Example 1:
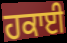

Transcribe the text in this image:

ਹਕਾਈ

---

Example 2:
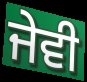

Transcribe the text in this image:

ਜੇਵੀ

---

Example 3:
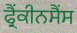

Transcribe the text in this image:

ਫ੍ਰੈਂਕੀਨਸੈਂਸ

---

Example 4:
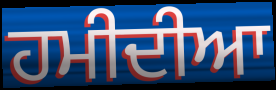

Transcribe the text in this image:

ਹਮੀਦੀਆ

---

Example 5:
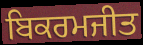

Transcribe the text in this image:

ਬਿਕਰਮਜੀਤ